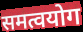
समत्वयोग